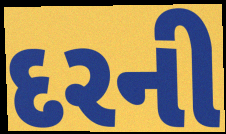
દરની